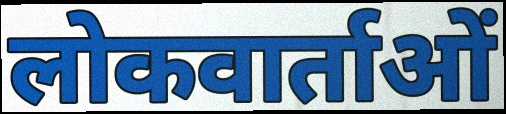
लोकवार्ताओं